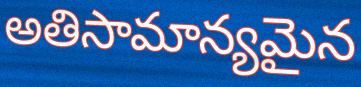
అతిసామాన్యమైన